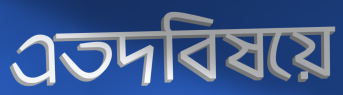
এতদবিষয়ে